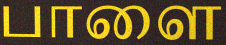
பாளை